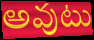
అవుటు